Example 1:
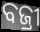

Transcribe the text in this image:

ବଜ୍ରୀ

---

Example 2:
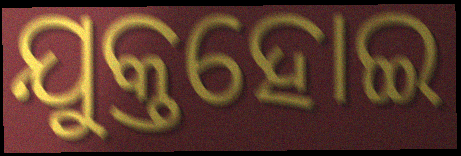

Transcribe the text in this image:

ଯୁକ୍ତହୋଇ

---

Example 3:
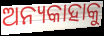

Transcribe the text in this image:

ଅନ୍ୟକାହାକୁ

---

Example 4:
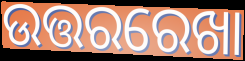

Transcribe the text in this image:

ଉତ୍ତରରେଖା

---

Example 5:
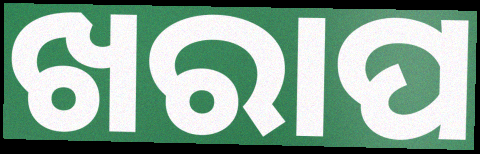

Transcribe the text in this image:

ଖରାପ